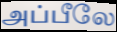
அப்பீலே